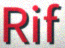
Rif